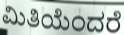
ಮಿತಿಯೆಂದರೆ